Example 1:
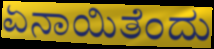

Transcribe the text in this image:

ಏನಾಯಿತೆಂದು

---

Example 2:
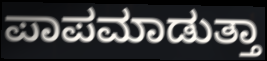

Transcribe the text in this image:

ಪಾಪಮಾಡುತ್ತಾ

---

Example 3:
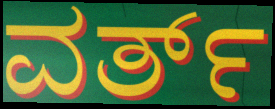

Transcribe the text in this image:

ವರ್ತ್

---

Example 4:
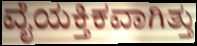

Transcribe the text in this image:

ವೈಯಕ್ತಿಕವಾಗಿತ್ತು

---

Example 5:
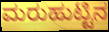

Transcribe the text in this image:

ಮರುಹುಟ್ಟಿನ